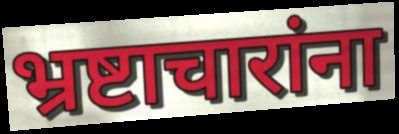
भ्रष्टाचारांना